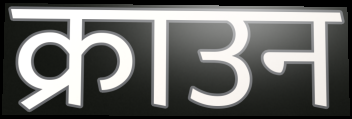
क्राउन